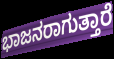
ಭಾಜನರಾಗುತ್ತಾರೆ